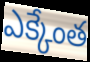
ఎక్కేంత